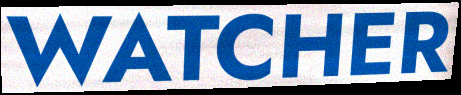
WATCHER